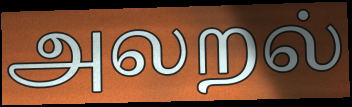
அலறல்